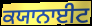
ਕਯਾਨਾਈਟ